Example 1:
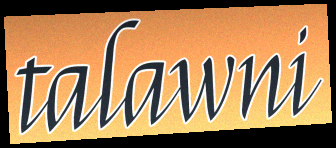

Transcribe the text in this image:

talawni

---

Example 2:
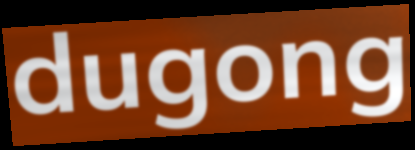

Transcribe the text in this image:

dugong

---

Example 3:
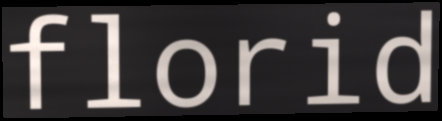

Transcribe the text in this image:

florid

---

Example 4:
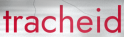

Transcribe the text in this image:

tracheid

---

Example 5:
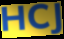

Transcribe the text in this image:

HCJ